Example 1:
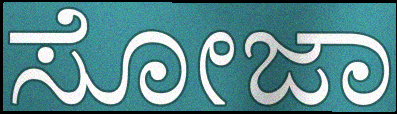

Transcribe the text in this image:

ಸೋಜಾ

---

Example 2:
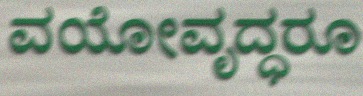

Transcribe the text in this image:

ವಯೋವೃದ್ಧರೂ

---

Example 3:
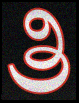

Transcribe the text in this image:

ತಿ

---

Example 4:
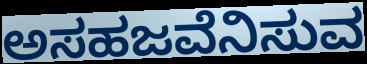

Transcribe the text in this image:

ಅಸಹಜವೆನಿಸುವ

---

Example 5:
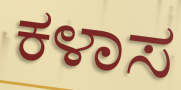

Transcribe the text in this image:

ಕಳಾಸ